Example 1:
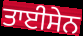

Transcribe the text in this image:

ਤਾਈਸੇਨ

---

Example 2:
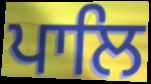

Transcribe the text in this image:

ਪਾਲਿ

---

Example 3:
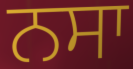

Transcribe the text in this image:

ਨਸਾ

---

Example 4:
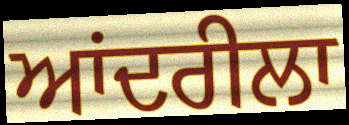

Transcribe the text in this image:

ਆਂਦਰੀਲਾ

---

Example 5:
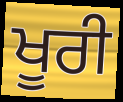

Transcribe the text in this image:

ਖੂਰੀ